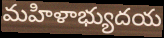
మహిళాభ్యుదయ